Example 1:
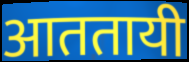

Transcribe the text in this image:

आततायी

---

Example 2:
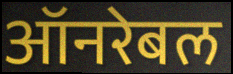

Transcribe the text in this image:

ऑनरेबल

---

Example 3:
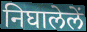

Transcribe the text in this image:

निघालेलें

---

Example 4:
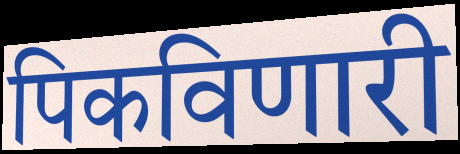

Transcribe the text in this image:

पिकविणारी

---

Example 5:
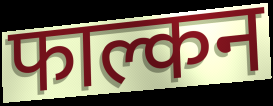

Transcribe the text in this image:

फाल्कन